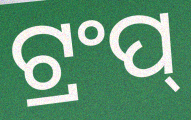
ଟ୍ରଂପ୍